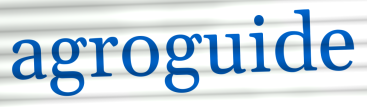
agroguide